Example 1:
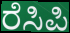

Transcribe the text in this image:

ರೆಸಿಪಿ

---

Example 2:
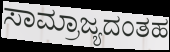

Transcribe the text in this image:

ಸಾಮ್ರಾಜ್ಯದಂತಹ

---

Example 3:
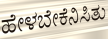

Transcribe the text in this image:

ಹೇಳಬೇಕೆನಿಸಿತು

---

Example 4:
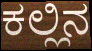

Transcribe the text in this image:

ಕಲ್ಲಿನ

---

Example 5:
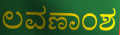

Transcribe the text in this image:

ಲವಣಾಂಶ